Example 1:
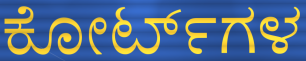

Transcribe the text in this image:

ಕೋರ್ಟ್‌ಗಳ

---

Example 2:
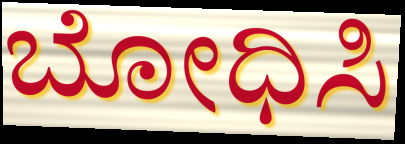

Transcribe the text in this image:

ಬೋಧಿಸಿ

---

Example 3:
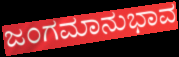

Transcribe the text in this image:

ಜಂಗಮಾನುಭಾವ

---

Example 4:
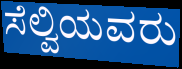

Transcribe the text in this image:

ಸೆಲ್ವಿಯವರು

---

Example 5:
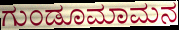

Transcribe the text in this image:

ಗುಂಡೂಮಾಮನ